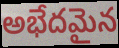
అభేదమైన